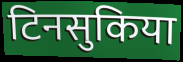
टिनसुकिया